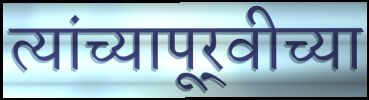
त्यांच्यापूर्वीच्या